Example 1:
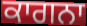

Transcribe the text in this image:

ਕਾਗਨਾ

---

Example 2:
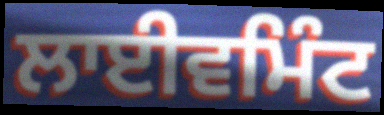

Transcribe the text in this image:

ਲਾਈਵਮਿੰਟ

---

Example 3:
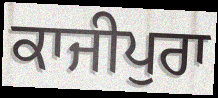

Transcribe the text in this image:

ਕਾਜੀਪੁਰਾ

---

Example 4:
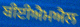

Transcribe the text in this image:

ਬੀਈਐਮਐਲ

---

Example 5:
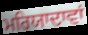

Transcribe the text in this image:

ਮਰਿਯਾਦਾਵਾਂ